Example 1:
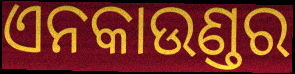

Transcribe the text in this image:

ଏନକାଉଣ୍ଡର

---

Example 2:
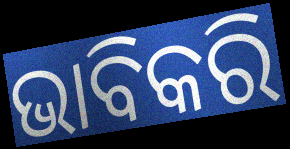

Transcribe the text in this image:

ଭାବିକରି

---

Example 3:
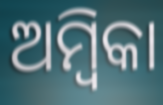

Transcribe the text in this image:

ଅମ୍ବିକା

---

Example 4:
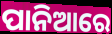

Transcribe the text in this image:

ପାନିଆରେ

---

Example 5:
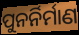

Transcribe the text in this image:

ପୁନର୍ନିର୍ମାଣ